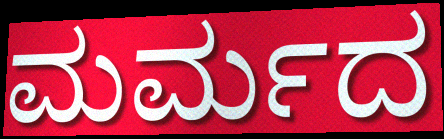
ಮರ್ಮದ